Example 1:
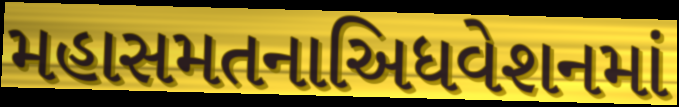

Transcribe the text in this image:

મહાસમતનાઅિધવેશનમાં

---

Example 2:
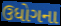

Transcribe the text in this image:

ઉધોગના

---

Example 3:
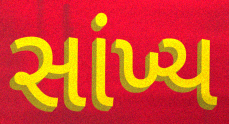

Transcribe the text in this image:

સાંખ્ય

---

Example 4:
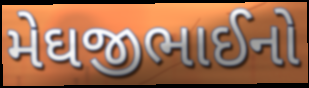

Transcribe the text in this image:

મેઘજીભાઈનો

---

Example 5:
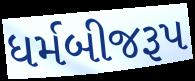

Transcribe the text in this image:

ધર્મબીજરૂપ